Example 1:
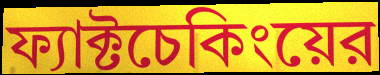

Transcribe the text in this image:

ফ্যাক্টচেকিংয়ের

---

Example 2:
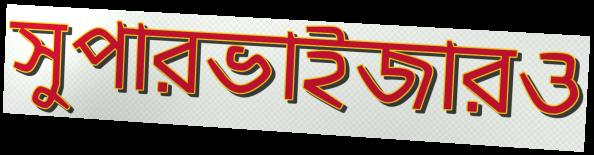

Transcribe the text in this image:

সুপারভাইজারও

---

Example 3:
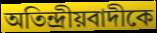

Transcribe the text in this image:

অতিন্দ্রীয়বাদীকে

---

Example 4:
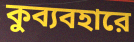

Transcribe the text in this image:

কুব্যবহারে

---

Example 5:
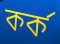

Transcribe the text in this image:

কর্ক